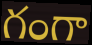
గంగా